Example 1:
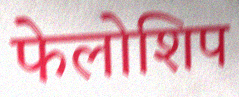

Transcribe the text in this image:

फेलोशिप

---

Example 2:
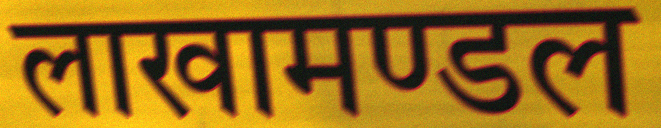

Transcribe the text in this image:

लाखामण्डल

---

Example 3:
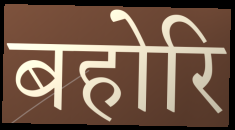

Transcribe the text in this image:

बहोरि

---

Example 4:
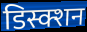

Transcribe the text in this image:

डिस्क्शन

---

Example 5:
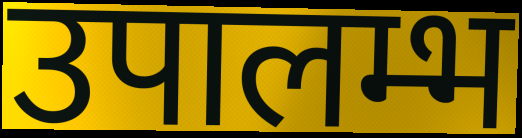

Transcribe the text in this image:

उपालम्भ